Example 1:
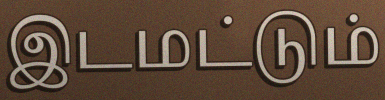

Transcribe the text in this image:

இடமட்டும்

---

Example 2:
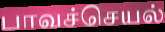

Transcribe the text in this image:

பாவச்செயல்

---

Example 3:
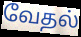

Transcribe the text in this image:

வேதல்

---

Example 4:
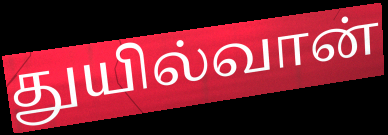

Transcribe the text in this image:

துயில்வான்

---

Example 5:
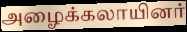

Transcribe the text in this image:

அழைக்கலாயினர்